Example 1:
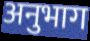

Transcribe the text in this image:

अनुभाग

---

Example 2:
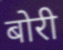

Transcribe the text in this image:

बोरी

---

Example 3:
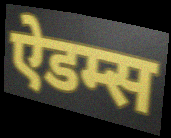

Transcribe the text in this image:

ऐडम्स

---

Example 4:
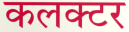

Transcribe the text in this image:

कलक्‍टर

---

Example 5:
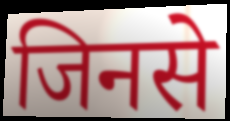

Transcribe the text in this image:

जिनसे